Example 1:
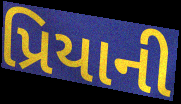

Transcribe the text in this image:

પ્રિયાની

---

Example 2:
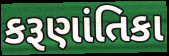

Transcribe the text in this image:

કરૂણાંતિકા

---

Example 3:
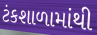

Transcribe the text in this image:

ટંકશાળામાંથી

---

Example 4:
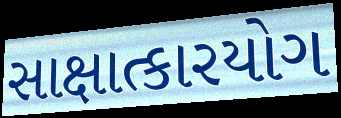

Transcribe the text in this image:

સાક્ષાત્કારયોગ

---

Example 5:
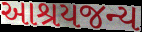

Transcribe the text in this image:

આશ્રયજન્ય